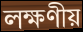
লক্ষণীয়